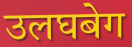
उलघबेग